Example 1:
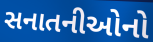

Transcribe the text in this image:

સનાતનીઓનો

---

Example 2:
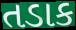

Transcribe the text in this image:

તડાક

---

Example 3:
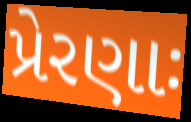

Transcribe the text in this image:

પ્રેરણાઃ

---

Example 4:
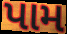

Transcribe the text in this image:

પામ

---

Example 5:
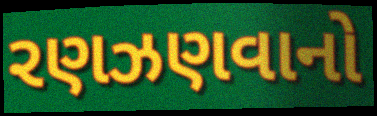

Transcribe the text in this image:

રણઝણવાનો